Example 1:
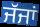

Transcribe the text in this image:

ਜੱਜਾਂ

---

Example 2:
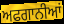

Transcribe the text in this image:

ਅਫਗਾਨੀਆਂ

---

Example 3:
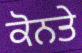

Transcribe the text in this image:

ਕੋਨਤੇ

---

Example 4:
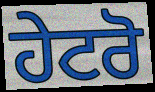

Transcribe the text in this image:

ਹੇਟਰੋ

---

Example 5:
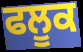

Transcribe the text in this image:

ਫਲੂਕ